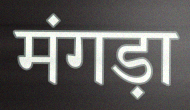
मंगड़ा